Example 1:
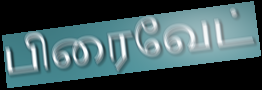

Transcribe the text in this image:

பிரைவேட்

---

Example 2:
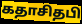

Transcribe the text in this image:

கதாசிதபி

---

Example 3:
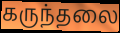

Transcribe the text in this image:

கருந்தலை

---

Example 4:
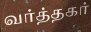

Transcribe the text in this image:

வர்த்தகர்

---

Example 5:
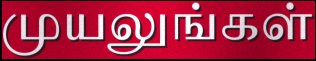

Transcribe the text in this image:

முயலுங்கள்